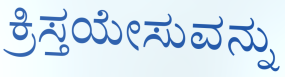
ಕ್ರಿಸ್ತಯೇಸುವನ್ನು